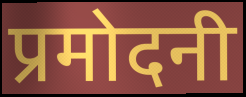
प्रमोदनी